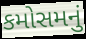
કમોસમનું